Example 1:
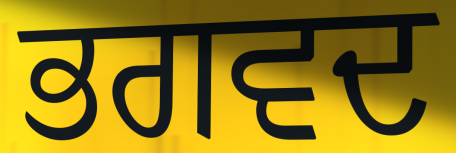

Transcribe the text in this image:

ਭਗਵਦ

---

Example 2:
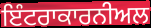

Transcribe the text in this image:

ਇੰਟਰਾਕਾਰਨੀਅਲ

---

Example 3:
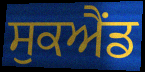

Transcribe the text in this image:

ਸੁਕਐਂਡ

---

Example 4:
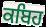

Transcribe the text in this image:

ਕਬਿਹ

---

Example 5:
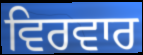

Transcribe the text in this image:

ਵਿਰਵਾਰ